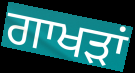
ਗਾਖੜਾਂ